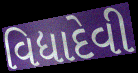
વિદ્યાદેવી